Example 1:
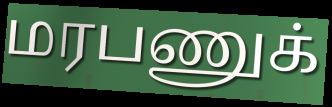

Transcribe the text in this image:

மரபணுக்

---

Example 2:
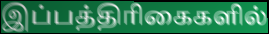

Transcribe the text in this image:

இப்பத்திரிகைகளில்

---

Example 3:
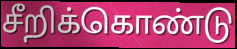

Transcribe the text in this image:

சீறிக்கொண்டு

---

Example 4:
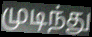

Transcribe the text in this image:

முடிந்து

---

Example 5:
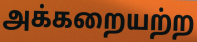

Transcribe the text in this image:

அக்கறையற்ற